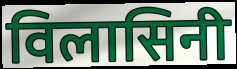
विलासिनी